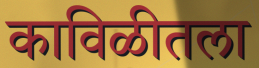
काविळीतला